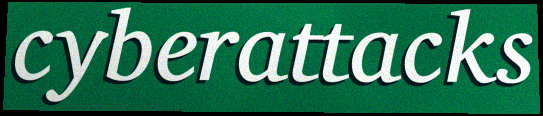
cyberattacks